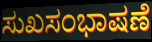
ಸುಖಸಂಭಾಷಣೆ